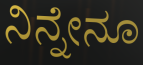
ನಿನ್ನೇನೂ